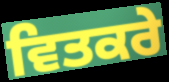
ਵਿਤਕਰੇ